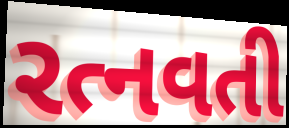
રત્નવતી